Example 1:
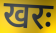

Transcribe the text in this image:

खरः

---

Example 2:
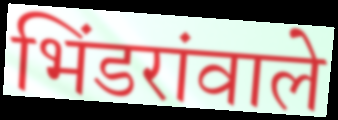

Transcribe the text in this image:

भिंडरांवाले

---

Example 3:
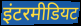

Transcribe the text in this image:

इंटरमीडियट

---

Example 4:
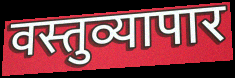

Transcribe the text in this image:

वस्तुव्यापार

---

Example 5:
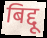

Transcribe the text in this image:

बिद्दू